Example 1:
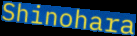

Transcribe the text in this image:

Shinohara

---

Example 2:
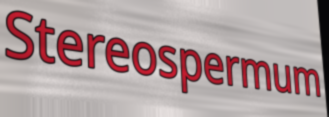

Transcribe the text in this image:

Stereospermum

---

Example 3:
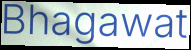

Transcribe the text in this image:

Bhagawat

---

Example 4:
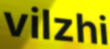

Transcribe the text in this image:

vilzhi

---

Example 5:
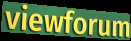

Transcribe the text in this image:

viewforum